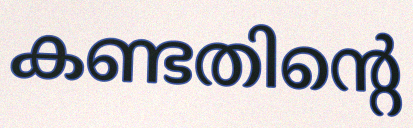
കണ്ടതിന്റെ